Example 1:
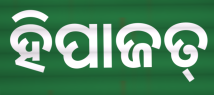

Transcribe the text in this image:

ହିପାଜତ୍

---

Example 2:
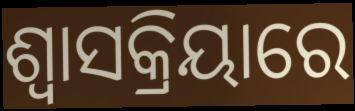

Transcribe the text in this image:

ଶ୍ୱାସକ୍ରିୟାରେ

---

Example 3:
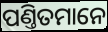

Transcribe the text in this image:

ପଣ୍ତିତମାନେ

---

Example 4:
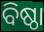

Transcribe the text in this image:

ବିଷ୍ଠା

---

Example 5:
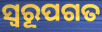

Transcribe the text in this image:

ସ୍ଵରୂପଗତ